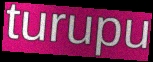
turupu